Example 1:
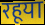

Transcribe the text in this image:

रहूया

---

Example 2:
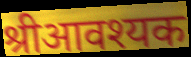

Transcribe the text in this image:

श्रीआवश्यक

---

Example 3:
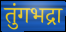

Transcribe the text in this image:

तुंगभद्रा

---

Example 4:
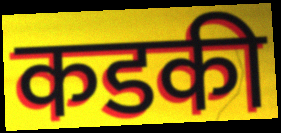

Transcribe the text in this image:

कडकी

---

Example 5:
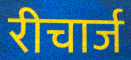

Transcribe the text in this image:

रीचार्ज